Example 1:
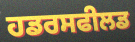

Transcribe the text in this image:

ਹਡਰਸਫੀਲਡ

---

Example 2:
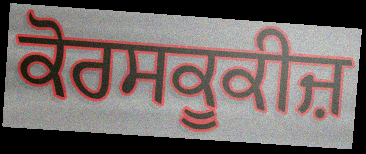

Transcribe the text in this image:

ਕੋਰਸਕੂਕੀਜ਼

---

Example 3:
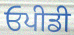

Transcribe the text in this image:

ਓਪੀਡੀ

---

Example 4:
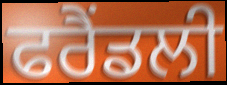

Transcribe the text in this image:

ਫਰੈਂਡਲੀ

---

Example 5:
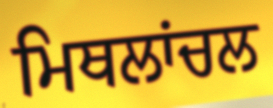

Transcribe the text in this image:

ਮਿਥਲਾਂਚਲ